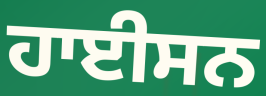
ਹਾਈਸਨ